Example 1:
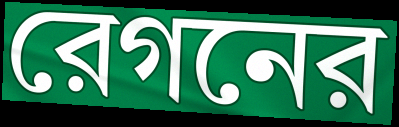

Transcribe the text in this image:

রেগনের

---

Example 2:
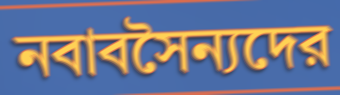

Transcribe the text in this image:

নবাবসৈন্যদের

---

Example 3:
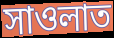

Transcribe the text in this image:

সাওলাত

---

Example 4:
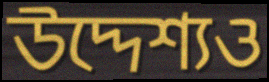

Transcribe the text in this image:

উদ্দেশ্যও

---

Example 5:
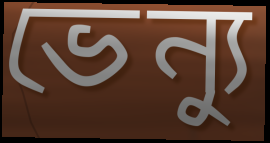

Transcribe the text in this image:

ভেন্যু